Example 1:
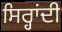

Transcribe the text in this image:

ਸਿਰ੍ਹਾਂਦੀ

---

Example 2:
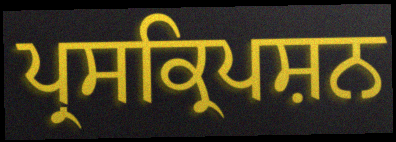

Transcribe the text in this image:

ਪ੍ਰਸਕ੍ਰਿਪਸ਼ਨ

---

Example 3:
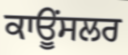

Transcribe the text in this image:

ਕਾਊਂਸਲਰ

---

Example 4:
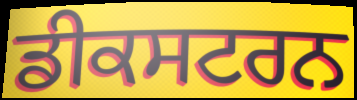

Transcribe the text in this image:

ਡੀਕਸਟਰਨ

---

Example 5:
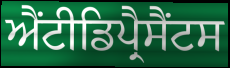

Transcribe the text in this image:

ਐਂਟੀਡਿਪ੍ਰੈਸੈਂਟਸ